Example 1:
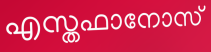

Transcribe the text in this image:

എസ്തഫാനോസ്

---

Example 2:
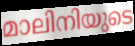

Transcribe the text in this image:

മാലിനിയുടെ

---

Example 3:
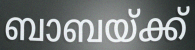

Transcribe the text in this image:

ബാബയ്ക്ക്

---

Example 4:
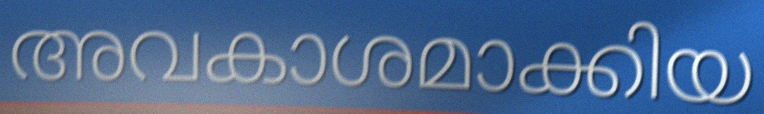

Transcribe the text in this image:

അവകാശമാക്കിയ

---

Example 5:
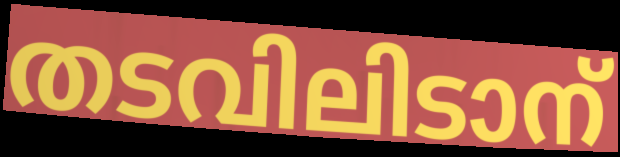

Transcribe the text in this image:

തടവിലിടാന്